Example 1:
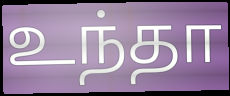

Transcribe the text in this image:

உந்தா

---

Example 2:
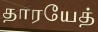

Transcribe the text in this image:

தாரயேத்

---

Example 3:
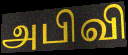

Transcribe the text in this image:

அபிவி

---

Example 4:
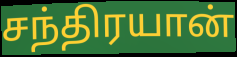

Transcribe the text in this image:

சந்திரயான்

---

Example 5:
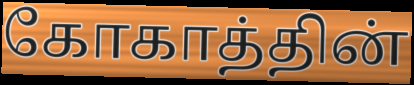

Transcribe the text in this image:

கோகாத்தின்